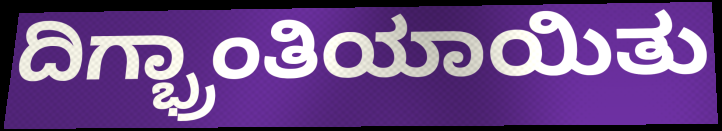
ದಿಗ್ಭ್ರಾಂತಿಯಾಯಿತು